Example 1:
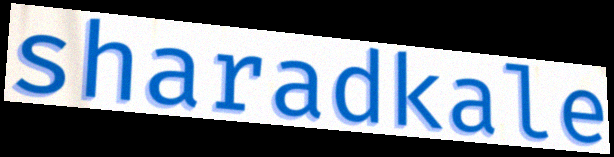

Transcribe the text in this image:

sharadkale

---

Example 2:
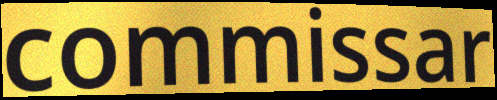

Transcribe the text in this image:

commissar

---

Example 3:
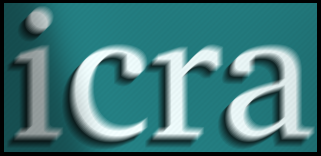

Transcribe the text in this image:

icra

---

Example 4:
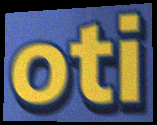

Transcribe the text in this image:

oti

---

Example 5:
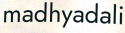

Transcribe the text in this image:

madhyadali